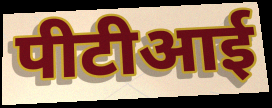
पीटीआई